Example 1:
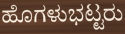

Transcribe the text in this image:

ಹೊಗಳುಭಟ್ಟರು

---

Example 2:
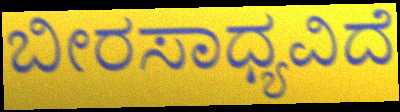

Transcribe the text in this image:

ಬೀರಸಾಧ್ಯವಿದೆ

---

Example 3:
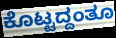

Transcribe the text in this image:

ಕೊಟ್ಟದ್ದಂತೂ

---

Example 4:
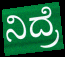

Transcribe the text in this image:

ನಿದ್ರೆ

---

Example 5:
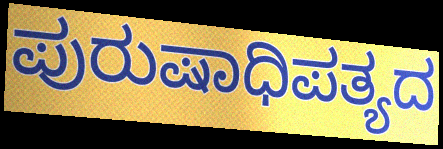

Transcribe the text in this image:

ಪುರುಷಾಧಿಪತ್ಯದ